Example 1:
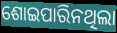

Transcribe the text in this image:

ଶୋଇପାରିନଥିଲା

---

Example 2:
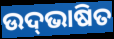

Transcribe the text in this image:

ଉଦ୍‍ଭାଷିତ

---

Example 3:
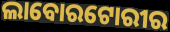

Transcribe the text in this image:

ଲାବୋରଟୋରୀର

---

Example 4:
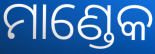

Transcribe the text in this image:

ମାଣ୍ଡେକ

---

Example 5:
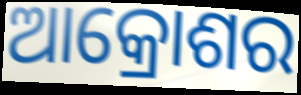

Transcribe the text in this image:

ଆକ୍ରୋଶର